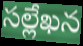
సల్లేఖన